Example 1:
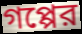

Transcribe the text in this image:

গপ্পের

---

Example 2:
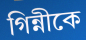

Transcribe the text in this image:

গিন্নীকে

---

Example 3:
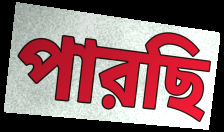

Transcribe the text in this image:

পারছি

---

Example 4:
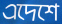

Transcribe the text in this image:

এদেশে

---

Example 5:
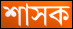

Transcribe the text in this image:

শাসক